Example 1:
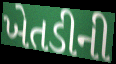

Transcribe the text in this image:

ખેતડીની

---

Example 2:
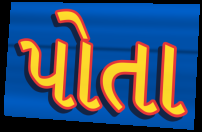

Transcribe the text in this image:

પોતા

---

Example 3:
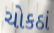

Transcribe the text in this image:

ચોકઠાં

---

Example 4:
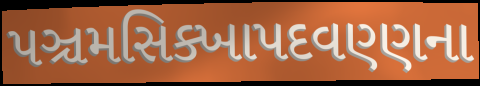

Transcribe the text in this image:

પઞ્ચમસિક્ખાપદવણ્ણના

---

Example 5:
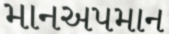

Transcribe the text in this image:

માનઅપમાન